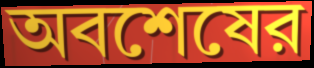
অবশেষের